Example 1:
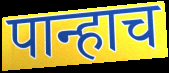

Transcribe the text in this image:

पान्हाच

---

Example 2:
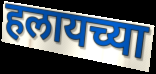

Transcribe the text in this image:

हलायच्या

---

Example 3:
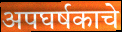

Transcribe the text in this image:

अपघर्षकाचे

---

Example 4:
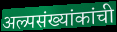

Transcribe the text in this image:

अल्पसंख्यांकांची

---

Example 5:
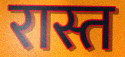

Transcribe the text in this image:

रास्त